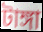
টাঙ্গা